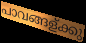
പാവങ്ങള്ക്കു